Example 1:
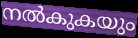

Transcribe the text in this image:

നൽകുകയും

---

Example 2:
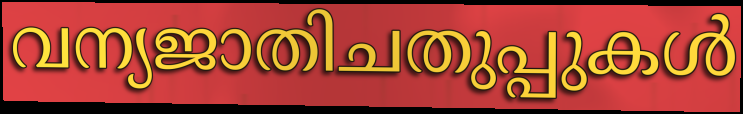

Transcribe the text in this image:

വന്യജാതിചതുപ്പുകൾ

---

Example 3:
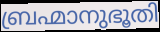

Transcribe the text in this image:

ബ്രഹ്മാനുഭൂതി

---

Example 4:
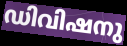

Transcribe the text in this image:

ഡിവിഷനു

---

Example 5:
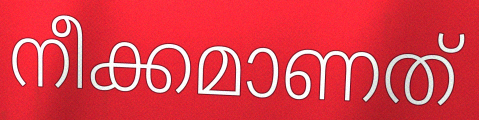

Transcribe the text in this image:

നീക്കമാണത്